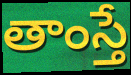
తాంస్తే